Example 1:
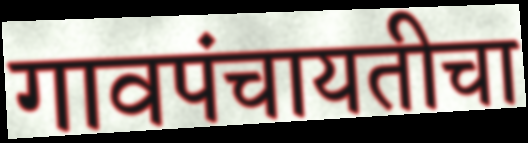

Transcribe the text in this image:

गावपंचायतीचा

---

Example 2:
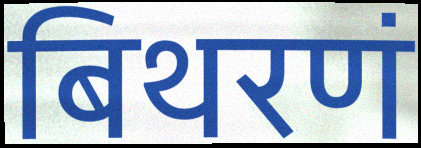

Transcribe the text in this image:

बिथरणं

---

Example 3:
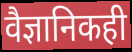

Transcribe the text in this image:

वैज्ञानिकही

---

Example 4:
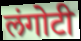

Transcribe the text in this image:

लंगोटी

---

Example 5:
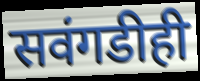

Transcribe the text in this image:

सवंगडीही